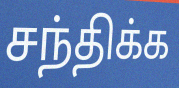
சந்திக்க